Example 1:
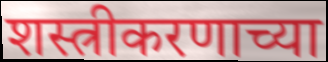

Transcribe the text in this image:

शस्त्रीकरणाच्या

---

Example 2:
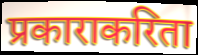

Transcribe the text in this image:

प्रकाराकरिता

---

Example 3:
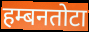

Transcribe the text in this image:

हम्बनतोटा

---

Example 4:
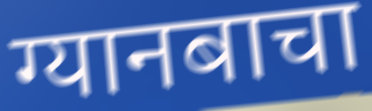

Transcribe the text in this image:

ग्यानबाचा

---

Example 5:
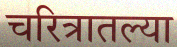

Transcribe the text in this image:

चरित्रातल्या